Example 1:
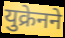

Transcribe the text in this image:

युक्रेनने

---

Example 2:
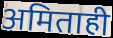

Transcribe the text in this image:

अमिताही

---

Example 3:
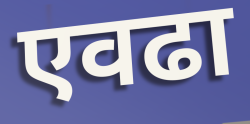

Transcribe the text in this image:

एवढा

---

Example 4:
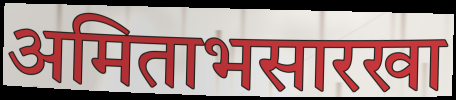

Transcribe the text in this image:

अमिताभसारखा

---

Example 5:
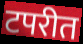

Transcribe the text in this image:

टपरीत